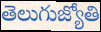
తెలుగుజ్యోతి